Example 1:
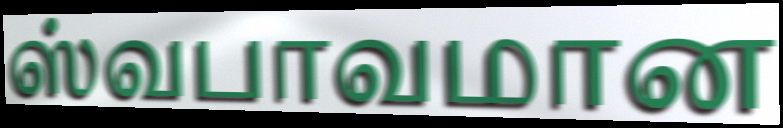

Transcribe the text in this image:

ஸ்வபாவமான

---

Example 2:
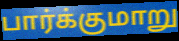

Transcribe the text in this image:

பார்க்குமாறு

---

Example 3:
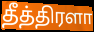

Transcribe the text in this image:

தீத்திரளா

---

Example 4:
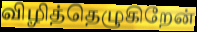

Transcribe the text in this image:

விழித்தெழுகிறேன்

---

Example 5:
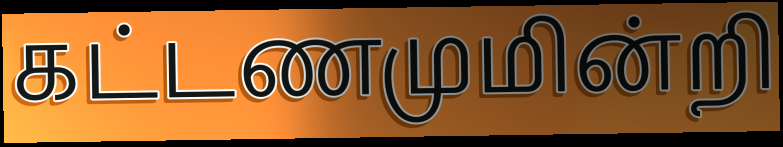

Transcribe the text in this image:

கட்டணமுமின்றி